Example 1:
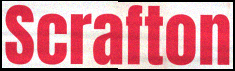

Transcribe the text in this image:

Scrafton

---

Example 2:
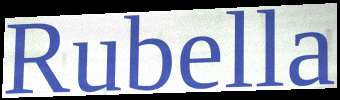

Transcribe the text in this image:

Rubella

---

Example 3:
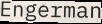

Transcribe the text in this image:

Engerman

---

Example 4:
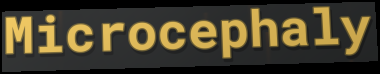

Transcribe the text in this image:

Microcephaly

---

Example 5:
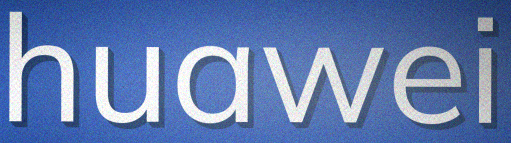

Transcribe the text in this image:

huawei